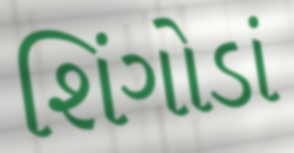
શિંગોડાં